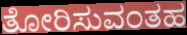
ತೋರಿಸುವಂತಹ